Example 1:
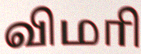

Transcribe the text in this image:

விமரி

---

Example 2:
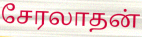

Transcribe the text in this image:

சேரலாதன்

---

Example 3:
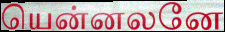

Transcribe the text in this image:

யென்னலனே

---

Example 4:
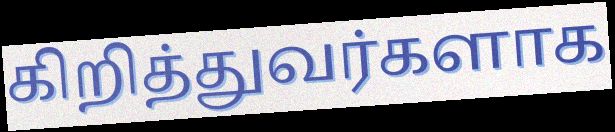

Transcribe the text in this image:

கிறித்துவர்களாக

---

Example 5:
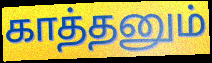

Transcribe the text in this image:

காத்தனும்